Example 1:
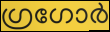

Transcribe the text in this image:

ഗ്രഗോർ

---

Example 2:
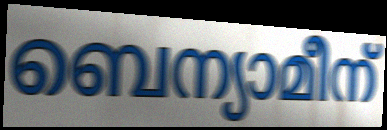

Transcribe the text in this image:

ബെന്യാമീന്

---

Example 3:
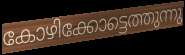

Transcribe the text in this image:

കോഴിക്കോട്ടെത്തുന്നു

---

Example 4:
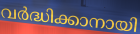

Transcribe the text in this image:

വർദ്ധിക്കാനായി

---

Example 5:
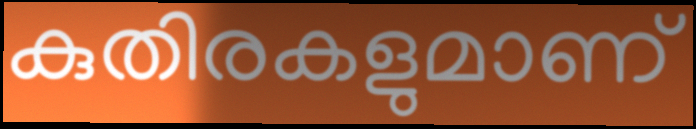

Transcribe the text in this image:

കുതിരകളുമാണ്